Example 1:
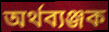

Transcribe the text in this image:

অৰ্থব্যঞ্জক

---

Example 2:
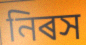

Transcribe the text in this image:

নিৰস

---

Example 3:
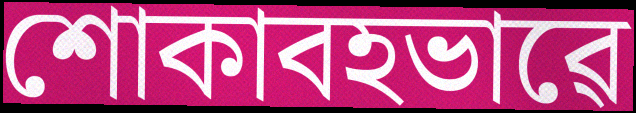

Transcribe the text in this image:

শোকাবহভাৱে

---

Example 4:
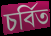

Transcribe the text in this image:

চৰ্বিত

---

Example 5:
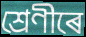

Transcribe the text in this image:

শ্ৰেণীৰে